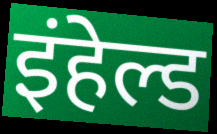
इंहेल्ड